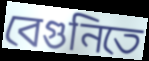
বেগুনিতে